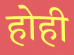
होही